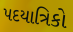
પદયાત્રિકો